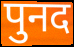
पुनद